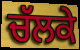
ਚੱਲਕੇ